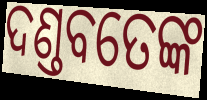
ଦଣ୍ଡବତେଙ୍କ